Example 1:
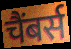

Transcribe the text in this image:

चैंबर्स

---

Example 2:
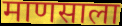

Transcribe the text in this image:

माणसाला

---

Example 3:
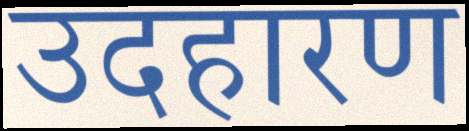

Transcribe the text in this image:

उदहारण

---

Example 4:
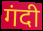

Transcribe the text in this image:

गंदी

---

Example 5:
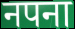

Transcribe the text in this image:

नपना